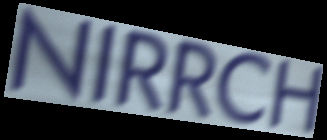
NIRRCH